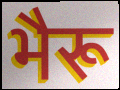
भैरू